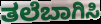
ತಲೆಬಾಗಿಸಿ